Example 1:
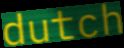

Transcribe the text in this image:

dutch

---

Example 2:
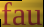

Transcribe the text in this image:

fau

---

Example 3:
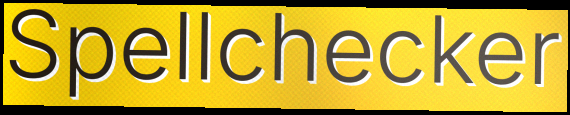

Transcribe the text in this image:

Spellchecker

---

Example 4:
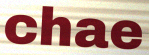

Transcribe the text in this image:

chae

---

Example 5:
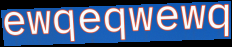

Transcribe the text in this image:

ewqeqwewq